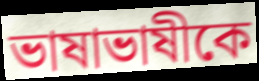
ভাষাভাষীকে